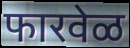
फारवेळ